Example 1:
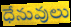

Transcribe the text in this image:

ధేనువులు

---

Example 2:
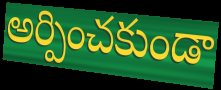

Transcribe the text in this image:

అర్పించకుండా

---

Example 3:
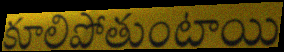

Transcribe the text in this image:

కూలిపోతుంటాయి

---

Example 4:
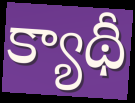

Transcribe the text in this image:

క్యాథీ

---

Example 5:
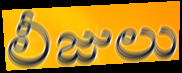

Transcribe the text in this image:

లీజులు